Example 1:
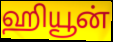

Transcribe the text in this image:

ஹியூன்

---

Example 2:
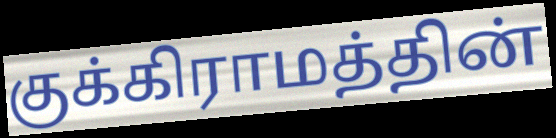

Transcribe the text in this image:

குக்கிராமத்தின்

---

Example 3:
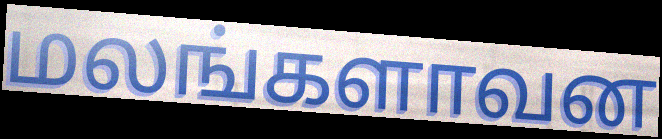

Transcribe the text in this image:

மலங்களாவன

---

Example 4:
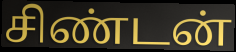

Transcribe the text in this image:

சிண்டன்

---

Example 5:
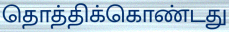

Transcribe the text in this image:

தொத்திக்கொண்டது